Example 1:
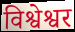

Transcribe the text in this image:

विश्वेश्वर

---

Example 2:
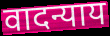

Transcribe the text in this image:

वादन्याय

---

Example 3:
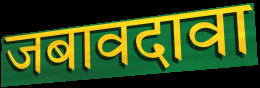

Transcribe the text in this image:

जबावदावा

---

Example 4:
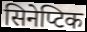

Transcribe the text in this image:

सिनेप्टिक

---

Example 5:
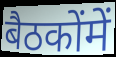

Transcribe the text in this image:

बैठकोंमें